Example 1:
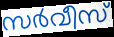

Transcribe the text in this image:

സർവീസ്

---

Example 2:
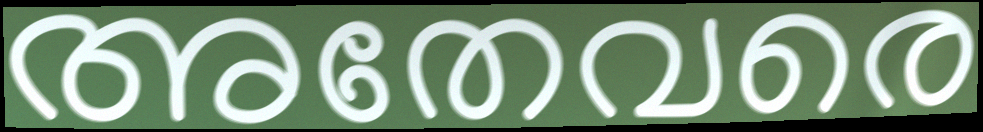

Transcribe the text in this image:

അതേവരെ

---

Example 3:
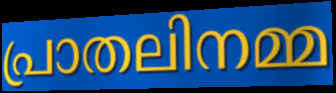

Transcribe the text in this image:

പ്രാതലിനമ്മ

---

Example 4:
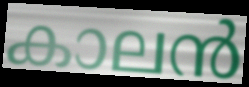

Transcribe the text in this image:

കാലൻ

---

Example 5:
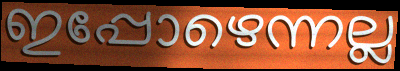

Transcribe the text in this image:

ഇപ്പോഴെന്നല്ല